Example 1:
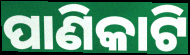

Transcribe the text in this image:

ପାଣିକାଟି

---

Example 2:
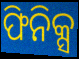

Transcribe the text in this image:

ଫିନିକ୍ସ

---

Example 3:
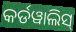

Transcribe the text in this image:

କର୍ଡୱାଲିସ୍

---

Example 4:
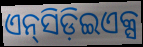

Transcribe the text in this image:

ଏନ୍‍ସିଡ଼ିଇଏକ୍ସ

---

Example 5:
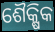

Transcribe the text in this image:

ଶୈକ୍ଷିକ